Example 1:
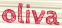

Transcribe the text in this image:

oliva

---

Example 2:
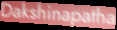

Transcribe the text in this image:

Dakshinapatha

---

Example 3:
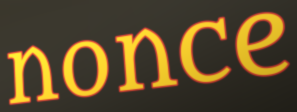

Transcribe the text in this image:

nonce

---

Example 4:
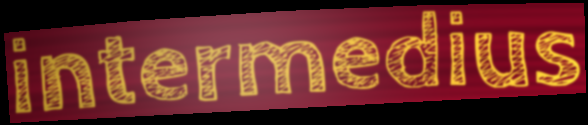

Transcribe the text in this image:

intermedius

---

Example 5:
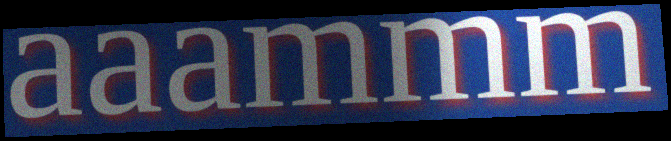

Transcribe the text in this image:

aaammm